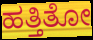
ಹತ್ತಿತೋ